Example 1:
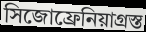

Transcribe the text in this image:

সিজোফ্রেনিয়াগ্রস্ত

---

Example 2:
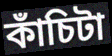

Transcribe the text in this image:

কাঁচিটা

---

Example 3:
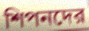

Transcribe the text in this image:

শিপনদের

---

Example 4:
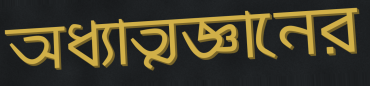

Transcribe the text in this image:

অধ্যাত্মজ্ঞানের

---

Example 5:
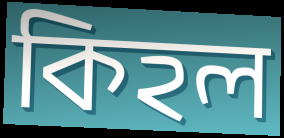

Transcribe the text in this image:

কিহল